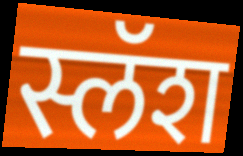
स्लॅश